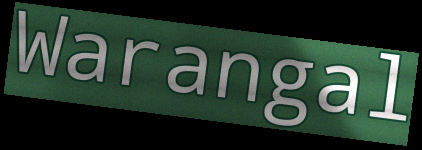
Warangal